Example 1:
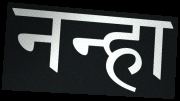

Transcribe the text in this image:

नन्हा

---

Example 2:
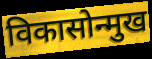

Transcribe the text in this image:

विकासोन्मुख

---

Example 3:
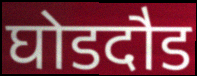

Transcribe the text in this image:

घोडदौड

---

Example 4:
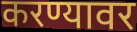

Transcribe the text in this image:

करण्यावर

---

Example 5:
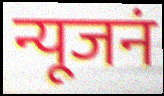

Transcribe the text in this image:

न्यूजनं